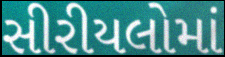
સીરીયલોમાં